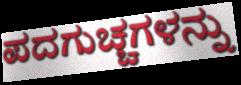
ಪದಗುಚ್ಚಗಳನ್ನು